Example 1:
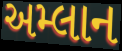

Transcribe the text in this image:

અમ્લાન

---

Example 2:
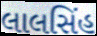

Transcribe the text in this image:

લાલસિંહ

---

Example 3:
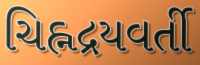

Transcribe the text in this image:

ચિહ્નદ્રયવર્તી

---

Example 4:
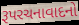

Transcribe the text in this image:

રૂપરચનાવાદનો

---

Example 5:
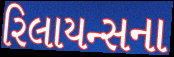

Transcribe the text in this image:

રિલાયન્સના